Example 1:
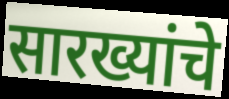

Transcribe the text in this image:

सारख्यांचे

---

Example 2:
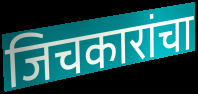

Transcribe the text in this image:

जिचकारांचा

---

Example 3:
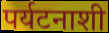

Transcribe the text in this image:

पर्यटनाशी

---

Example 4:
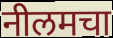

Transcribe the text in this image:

नीलमचा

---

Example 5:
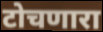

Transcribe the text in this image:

टोचणारा